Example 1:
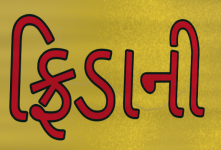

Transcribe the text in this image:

ફ્રિડાની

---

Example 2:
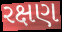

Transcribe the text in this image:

રક્ષણ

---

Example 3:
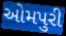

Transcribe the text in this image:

ઓમપુરી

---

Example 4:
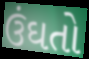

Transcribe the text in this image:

ઉંઘતો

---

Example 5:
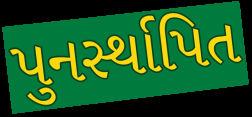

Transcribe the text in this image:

પુનર્સ્થાપિત